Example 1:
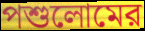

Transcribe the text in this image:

পশুলোমের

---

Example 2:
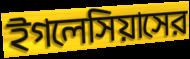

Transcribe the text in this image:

ইগলেসিয়াসের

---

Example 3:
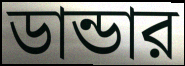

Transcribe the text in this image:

ডান্ডার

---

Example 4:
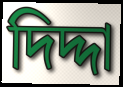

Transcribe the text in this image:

দিদ্দা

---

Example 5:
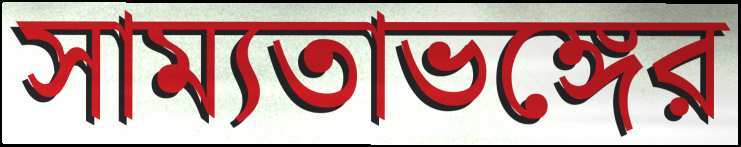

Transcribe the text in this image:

সাম্যতাভঙ্গের